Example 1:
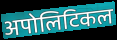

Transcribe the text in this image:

अपोलिटिकल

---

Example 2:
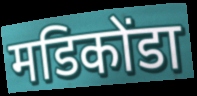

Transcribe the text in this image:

मडिकोंडा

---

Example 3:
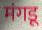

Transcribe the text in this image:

मंगडू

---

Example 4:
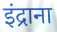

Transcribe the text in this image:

इंद्राना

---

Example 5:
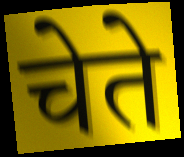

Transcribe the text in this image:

चेते